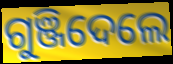
ଗୁଞ୍ଜିଦେଲେ